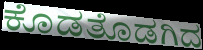
ಕೊಡತೊಡಗಿದ